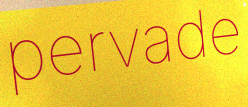
pervade